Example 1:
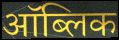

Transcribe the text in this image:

ऑब्लिक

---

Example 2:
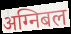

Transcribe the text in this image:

अग्निबल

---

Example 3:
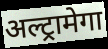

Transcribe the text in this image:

अल्ट्रामेगा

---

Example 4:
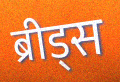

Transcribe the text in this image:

ब्रीड्स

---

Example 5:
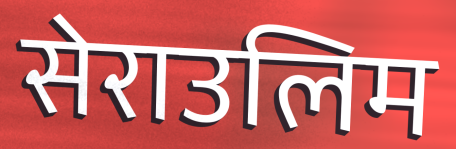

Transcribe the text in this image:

सेराउलिम